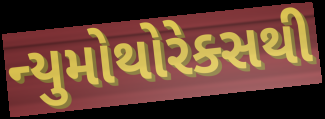
ન્યુમોથોરેક્સથી